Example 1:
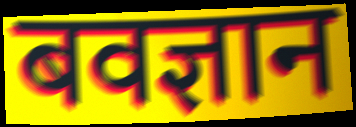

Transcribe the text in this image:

बवज्ञान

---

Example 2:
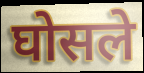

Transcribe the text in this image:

घोसले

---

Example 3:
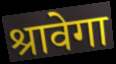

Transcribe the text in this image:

श्रावेगा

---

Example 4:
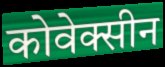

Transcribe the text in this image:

कोवेक्सीन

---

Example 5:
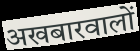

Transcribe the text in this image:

अखबारवालों